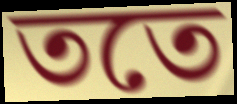
ততে